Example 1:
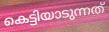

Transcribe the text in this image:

കെട്ടിയാടുന്നത്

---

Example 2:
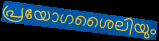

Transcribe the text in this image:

പ്രയോഗശൈലിയും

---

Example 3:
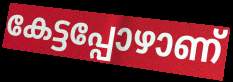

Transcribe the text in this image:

കേട്ടപ്പോഴാണ്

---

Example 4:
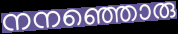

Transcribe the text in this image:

നനഞ്ഞൊരു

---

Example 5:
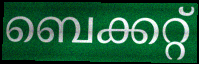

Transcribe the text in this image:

ബെക്കറ്റ്